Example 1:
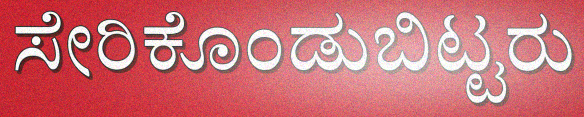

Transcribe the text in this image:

ಸೇರಿಕೊಂಡುಬಿಟ್ಟರು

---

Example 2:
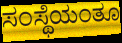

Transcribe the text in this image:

ಸಂಸ್ಥೆಯಂತೂ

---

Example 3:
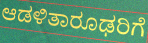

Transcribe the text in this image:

ಆಡಳಿತಾರೂಢರಿಗೆ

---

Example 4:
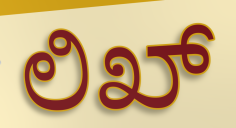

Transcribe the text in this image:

ಲಿಖ್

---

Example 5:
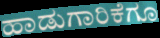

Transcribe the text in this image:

ಹಾಡುಗಾರಿಕೆಗೂ